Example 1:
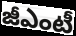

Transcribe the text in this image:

జీఎంటీ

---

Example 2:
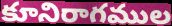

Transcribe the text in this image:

కూనిరాగముల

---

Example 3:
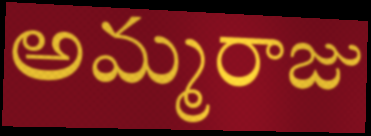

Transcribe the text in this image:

అమ్మరాజు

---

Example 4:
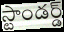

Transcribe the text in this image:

స్టాండర్డ్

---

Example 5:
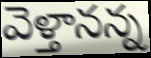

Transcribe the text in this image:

వెళ్తానన్న